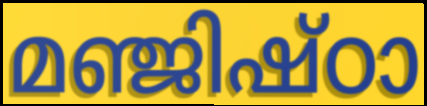
മഞ്ജിഷ്ഠാ